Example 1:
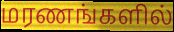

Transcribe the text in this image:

மரணங்களில்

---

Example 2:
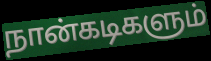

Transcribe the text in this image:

நான்கடிகளும்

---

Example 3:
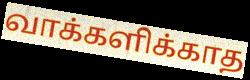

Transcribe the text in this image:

வாக்களிக்காத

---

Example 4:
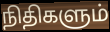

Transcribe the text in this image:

நிதிகளும்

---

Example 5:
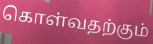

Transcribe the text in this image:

கொள்வதற்கும்